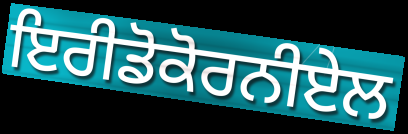
ਇਰੀਡੋਕੋਰਨੀਏਲ